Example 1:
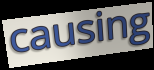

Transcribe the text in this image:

causing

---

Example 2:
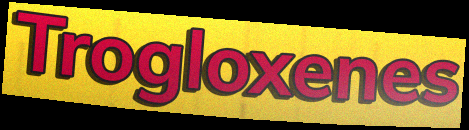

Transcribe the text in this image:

Trogloxenes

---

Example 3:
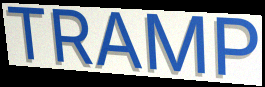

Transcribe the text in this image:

TRAMP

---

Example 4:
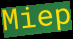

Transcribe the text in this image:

Miep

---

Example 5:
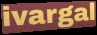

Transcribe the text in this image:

ivargal